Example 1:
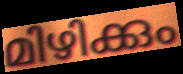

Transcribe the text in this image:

മിഴിക്കും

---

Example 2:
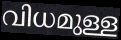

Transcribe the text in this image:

വിധമുള്ള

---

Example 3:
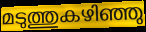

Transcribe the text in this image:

മടുത്തുകഴിഞ്ഞു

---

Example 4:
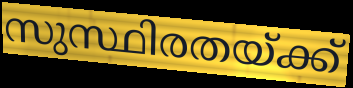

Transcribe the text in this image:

സുസ്ഥിരതയ്ക്ക്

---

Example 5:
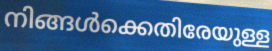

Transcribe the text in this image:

നിങ്ങൾക്കെതിരേയുള്ള